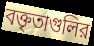
বক্তৃতাগুলির